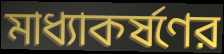
মাধ্যাকর্ষণের